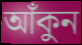
আঁকুন